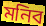
মনিব